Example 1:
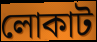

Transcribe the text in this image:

লোকাট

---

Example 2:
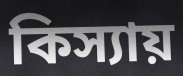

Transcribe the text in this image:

কিস্যায়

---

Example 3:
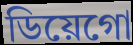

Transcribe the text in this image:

ডিয়েগো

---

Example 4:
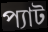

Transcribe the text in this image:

প্যাট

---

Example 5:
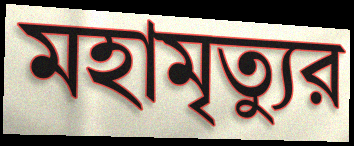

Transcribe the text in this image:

মহামৃত্যুর